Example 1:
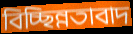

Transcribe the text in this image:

বিচ্ছিন্নতাবাদ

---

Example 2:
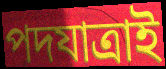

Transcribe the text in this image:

পদযাত্রাই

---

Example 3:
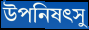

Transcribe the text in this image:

উপনিষৎসু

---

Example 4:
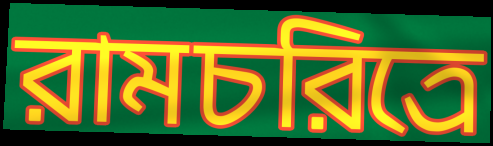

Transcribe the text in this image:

রামচরিত্রে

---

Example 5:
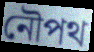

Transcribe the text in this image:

নৌপথ